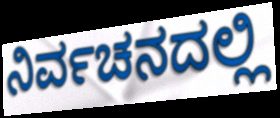
ನಿರ್ವಚನದಲ್ಲಿ